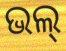
ଭଲ୍